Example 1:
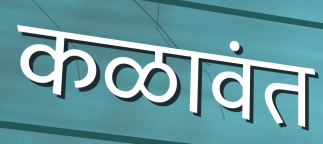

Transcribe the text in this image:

कळावंत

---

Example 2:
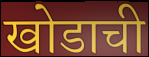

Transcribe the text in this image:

खोडाची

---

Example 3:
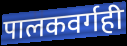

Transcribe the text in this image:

पालकवर्गही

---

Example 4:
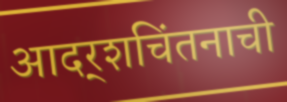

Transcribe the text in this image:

आदर्शचिंतनाची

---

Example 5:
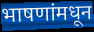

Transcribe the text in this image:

भाषणांमधून